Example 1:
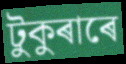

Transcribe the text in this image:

টুকুৰাৰে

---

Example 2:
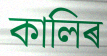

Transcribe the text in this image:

কালিৰ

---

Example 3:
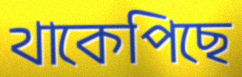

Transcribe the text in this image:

থাকেপিছে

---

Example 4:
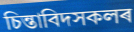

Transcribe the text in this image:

চিন্তাবিদসকলৰ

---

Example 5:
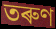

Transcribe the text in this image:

তৰুণ